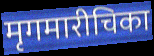
मृगमारीचिका